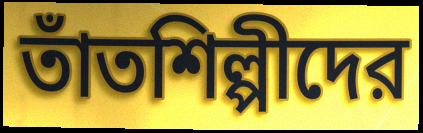
তাঁতশিল্পীদের